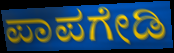
ಪಾಪಗೇಡಿ